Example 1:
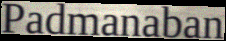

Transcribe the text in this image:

Padmanaban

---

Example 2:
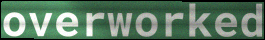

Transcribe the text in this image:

overworked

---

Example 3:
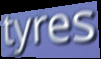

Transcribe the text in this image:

tyres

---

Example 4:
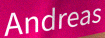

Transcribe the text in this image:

Andreas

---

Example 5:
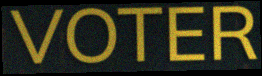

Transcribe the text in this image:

VOTER